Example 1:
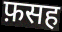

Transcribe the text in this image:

फ़सह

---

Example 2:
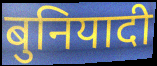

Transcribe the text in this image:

बुनियादी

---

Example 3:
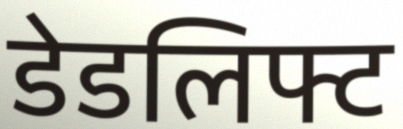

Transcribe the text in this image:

डेडलिफ्ट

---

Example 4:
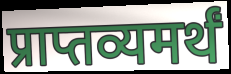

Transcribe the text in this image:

प्राप्तव्यमर्थं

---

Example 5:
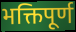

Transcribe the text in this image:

भक्तिपूर्ण